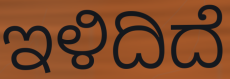
ಇಳಿದಿದೆ